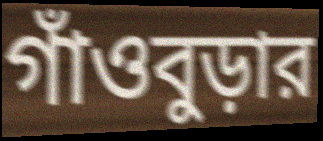
গাঁওবুড়ার